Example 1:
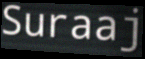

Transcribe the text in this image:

Suraaj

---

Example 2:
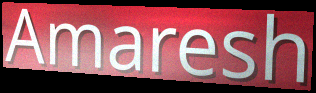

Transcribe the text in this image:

Amaresh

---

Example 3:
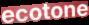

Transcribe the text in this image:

ecotone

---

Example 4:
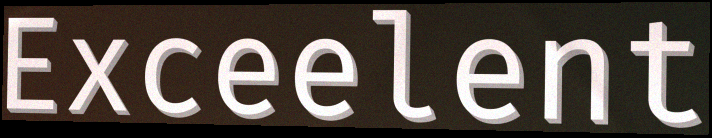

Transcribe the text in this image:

Exceelent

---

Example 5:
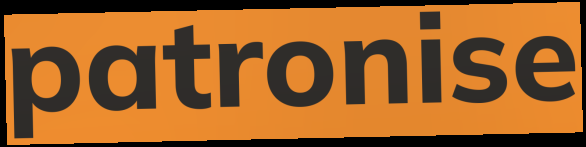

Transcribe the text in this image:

patronise